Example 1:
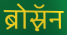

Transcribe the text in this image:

ब्रोस्नॅन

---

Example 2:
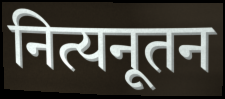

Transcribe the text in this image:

नित्यनूतन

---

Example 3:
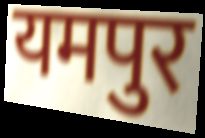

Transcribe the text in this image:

यमपुर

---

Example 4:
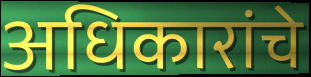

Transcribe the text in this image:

अधिकारांचे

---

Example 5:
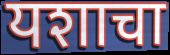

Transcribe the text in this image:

यशाचा